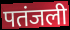
पतंजली